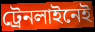
ট্রেনলাইনেই